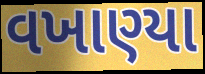
વખાણ્યા